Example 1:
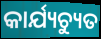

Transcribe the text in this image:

କାର୍ଯ୍ୟଚ୍ୟୁତ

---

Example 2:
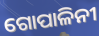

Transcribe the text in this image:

ଗୋପାଳିନୀ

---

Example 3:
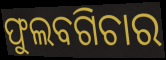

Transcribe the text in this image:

ଫୁଲବଗିଚାର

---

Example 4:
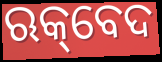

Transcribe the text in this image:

ଋକ୍‌ବେଦ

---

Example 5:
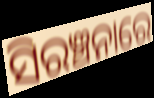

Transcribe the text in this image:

ସିରଞ୍ଚନାରେ